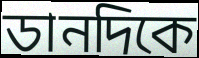
ডানদিকে